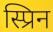
स्प्रिन